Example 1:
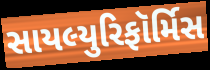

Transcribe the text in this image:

સાયલ્યુરિફૉર્મિસ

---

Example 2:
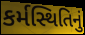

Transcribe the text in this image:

કર્મસ્થિતિનું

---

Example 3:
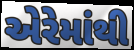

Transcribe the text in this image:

એરેમાંથી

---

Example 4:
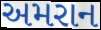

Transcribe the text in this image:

અમરાન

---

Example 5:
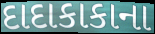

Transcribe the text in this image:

દાદાકાકાના